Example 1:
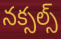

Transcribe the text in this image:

నక్సల్స్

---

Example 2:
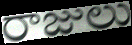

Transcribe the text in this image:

రాజులు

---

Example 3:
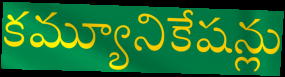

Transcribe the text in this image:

కమ్యూనికేషన్లు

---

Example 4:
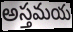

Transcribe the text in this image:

అస్తమయ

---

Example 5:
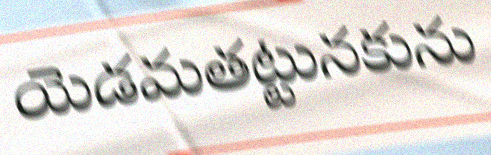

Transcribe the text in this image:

యెడమతట్టునకును